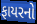
ફાયરનો